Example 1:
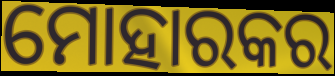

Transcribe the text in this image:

ମୋହାରକର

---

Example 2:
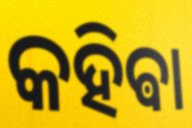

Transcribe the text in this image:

କହିଵା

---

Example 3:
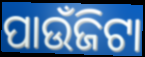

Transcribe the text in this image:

ପାଉଁଜିଟା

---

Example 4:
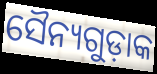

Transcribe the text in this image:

ସୈନ୍ୟଗୁଡ଼ାକ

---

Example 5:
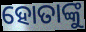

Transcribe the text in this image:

ହୋତାଙ୍କୁ